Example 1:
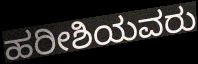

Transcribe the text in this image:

ಹರೀಶಿಯವರು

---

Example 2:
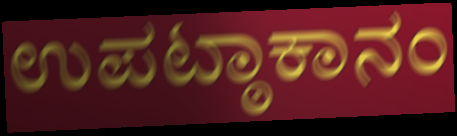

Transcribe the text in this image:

ಉಪಟ್ಠಾಕಾನಂ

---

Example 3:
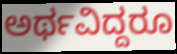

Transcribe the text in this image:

ಅರ್ಥವಿದ್ದರೂ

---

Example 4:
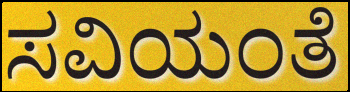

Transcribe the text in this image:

ಸವಿಯಂತೆ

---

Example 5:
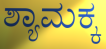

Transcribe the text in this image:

ಶ್ಯಾಮಕ್ಕ